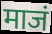
माजं